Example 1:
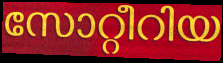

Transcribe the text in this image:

സോറ്റീറിയ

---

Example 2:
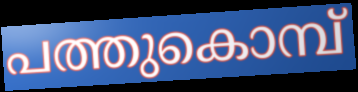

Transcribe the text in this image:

പത്തുകൊമ്പ്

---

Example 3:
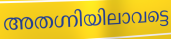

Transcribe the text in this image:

അതഗ്നിയിലാവട്ടെ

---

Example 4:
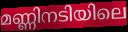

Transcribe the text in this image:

മണ്ണിനടിയിലെ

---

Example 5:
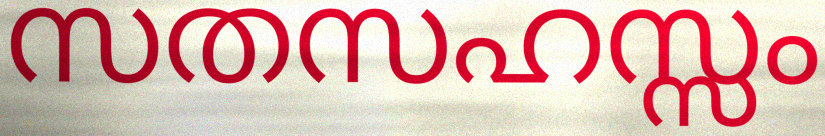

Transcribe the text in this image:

സതസഹസ്സം